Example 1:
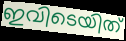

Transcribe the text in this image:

ഇവിടെയിത്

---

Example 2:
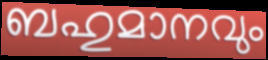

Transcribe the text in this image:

ബഹുമാനവും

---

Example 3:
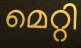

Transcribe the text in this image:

മെറ്റി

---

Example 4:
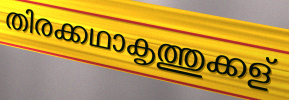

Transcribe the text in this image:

തിരക്കഥാകൃത്തുക്കള്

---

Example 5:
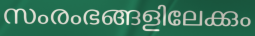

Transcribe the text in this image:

സംരംഭങ്ങളിലേക്കും